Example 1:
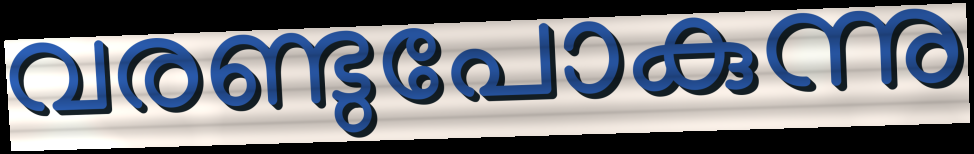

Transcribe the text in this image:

വരണ്ടുപോകുന്നു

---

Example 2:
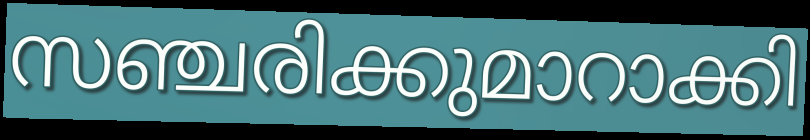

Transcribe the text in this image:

സഞ്ചരിക്കുമാറാക്കി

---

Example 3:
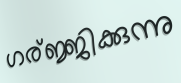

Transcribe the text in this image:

ഗര്ജ്ജിക്കുന്നു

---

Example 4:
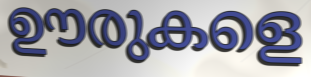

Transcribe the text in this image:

ഊരുകളെ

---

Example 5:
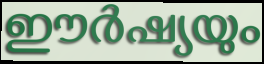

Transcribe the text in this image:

ഈർഷ്യയും